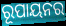
ରୂପାୟନର